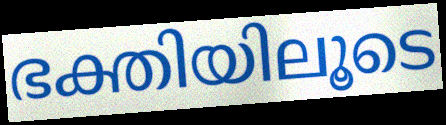
ഭക്തിയിലൂടെ